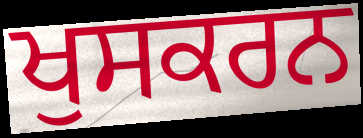
ਖੁਸਕਰਨ